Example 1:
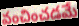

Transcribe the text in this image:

వంచించడమే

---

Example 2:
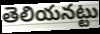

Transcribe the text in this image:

తెలియనట్టు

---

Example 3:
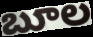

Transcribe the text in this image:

బూల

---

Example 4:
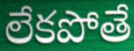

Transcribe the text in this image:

లేకపోతే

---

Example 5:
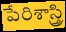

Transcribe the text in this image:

పేరిశాస్త్రి